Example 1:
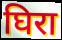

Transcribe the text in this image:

घिरा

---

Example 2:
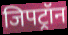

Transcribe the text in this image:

जिपट्रॉन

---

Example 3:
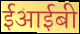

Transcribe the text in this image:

ईआईबी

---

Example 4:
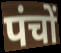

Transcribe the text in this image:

पंचों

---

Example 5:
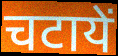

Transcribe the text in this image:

चटायें